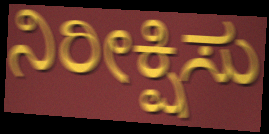
ನಿರೀಕ್ಷಿಸು